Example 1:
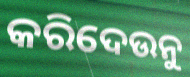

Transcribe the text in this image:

କରିଦେଉନୁ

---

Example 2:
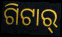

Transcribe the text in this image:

ଗିଟାର୍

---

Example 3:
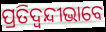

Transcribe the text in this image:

ପ୍ରତିଦ୍ୱନ୍ଦୀଭାବେ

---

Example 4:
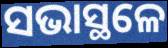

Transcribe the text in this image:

ସଭାସ୍ଥଳେ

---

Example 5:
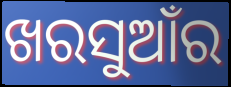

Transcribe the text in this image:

ଖରସୁଆଁର